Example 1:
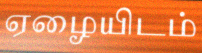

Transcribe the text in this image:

ஏழையிடம்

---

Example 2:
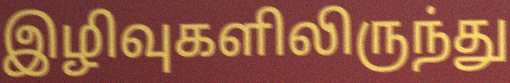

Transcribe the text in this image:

இழிவுகளிலிருந்து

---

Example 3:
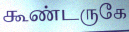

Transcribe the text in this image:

கூண்டருகே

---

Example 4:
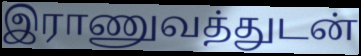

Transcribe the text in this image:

இராணுவத்துடன்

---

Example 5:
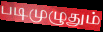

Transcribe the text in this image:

படிமுழுதும்